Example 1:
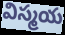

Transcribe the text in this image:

విస్మయ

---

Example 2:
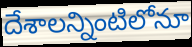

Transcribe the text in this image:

దేశాలన్నింటిలోనూ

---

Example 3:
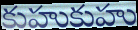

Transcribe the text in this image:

కుహుకుహు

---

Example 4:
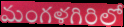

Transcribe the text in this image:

మంగళగిరిలో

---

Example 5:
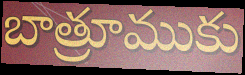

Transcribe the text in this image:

బాత్రూముకు